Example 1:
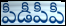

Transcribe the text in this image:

పీడీపీపీ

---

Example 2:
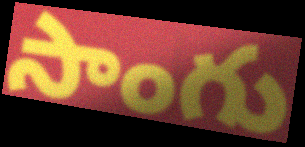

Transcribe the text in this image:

సాంగు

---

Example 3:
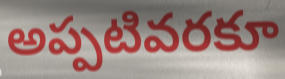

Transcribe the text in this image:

అప్పటివరకూ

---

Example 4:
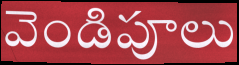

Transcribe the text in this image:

వెండిపూలు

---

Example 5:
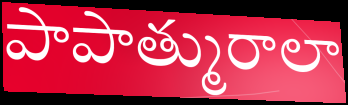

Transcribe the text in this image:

పాపాత్మురాలా